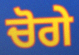
ਚੋਗੇ